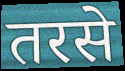
तरसे